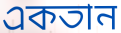
একতান